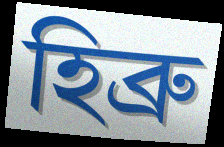
হিব্রু